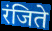
रंजिते